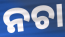
ନଚା